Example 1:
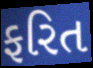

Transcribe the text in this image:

ફરિત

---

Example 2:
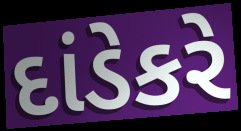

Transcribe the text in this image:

દાંડેકરે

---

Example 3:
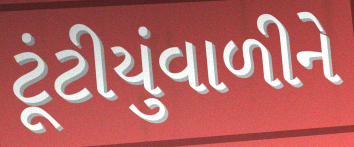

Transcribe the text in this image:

ટૂંટીયુંવાળીને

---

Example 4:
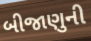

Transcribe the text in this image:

બીજાણુની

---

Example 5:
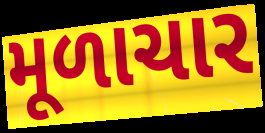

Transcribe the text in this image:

મૂળાચાર